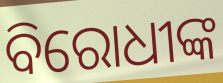
ବିରୋଧୀଙ୍କ